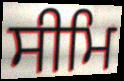
ਸੀਮਿ